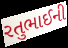
રતુભાઈની